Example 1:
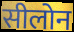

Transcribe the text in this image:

सीलोन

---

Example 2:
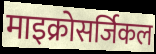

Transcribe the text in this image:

माइक्रोसर्जिकल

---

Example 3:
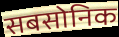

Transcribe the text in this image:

सबसोनिक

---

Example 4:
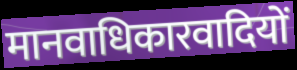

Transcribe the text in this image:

मानवाधिकारवादियों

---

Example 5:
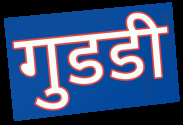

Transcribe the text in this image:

गुडडी